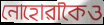
নোহোৱাকৈও